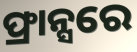
ଫ୍ରାନ୍ସରେ